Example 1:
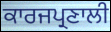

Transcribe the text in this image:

ਕਾਰਜਪ੍ਰਣਾਲੀ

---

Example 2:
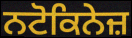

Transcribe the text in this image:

ਨਟੋਕਿਨੇਜ਼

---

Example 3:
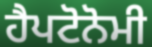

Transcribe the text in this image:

ਹੈਪਟੋਨੋਮੀ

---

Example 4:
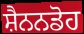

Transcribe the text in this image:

ਸ਼ੈਨਨਡੋਹ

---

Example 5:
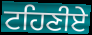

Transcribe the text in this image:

ਟਹਿਣੀਏ